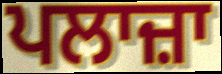
ਪਲਾਜ਼ਾ